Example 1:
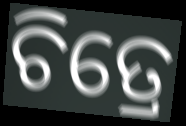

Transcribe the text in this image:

ଚିତ୍ରେ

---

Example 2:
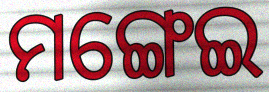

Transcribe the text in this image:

ମଙ୍ଗେଇ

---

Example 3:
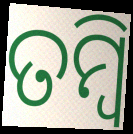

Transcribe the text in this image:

ତମ୍ବି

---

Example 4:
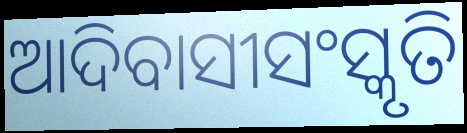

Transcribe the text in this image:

ଆଦିବାସୀସଂସ୍କୃତି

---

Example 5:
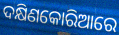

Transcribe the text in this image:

ଦକ୍ଷିଣକୋରିଆରେ